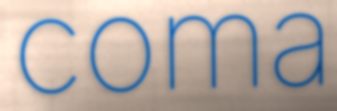
coma